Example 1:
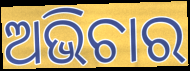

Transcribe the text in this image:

ଅଭିଚାର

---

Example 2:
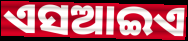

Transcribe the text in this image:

ଏସଆଇଏ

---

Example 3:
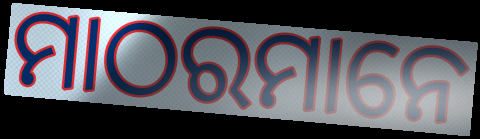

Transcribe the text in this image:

ମାଠରମାନେ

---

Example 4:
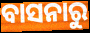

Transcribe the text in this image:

ବାସନାରୁ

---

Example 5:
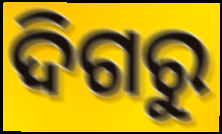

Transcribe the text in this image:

ଦିଗରୁ